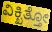
ವಿಕ್ಖಿತ್ತೋ